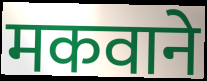
मकवाने